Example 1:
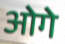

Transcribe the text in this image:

ओगे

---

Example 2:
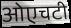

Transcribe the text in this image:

ओएचटी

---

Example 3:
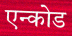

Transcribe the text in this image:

एन्कोड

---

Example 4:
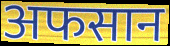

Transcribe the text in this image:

अफसान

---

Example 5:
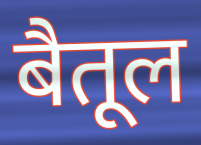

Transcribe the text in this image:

बैतूल